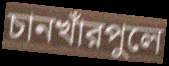
চানখাঁরপুলে